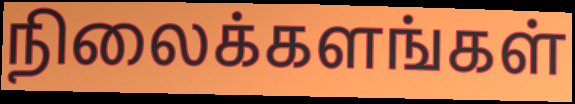
நிலைக்களங்கள்